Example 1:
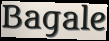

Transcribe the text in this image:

Bagale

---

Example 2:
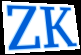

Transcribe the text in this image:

ZK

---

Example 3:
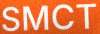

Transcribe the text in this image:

SMCT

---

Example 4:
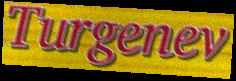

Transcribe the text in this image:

Turgenev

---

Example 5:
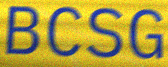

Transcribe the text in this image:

BCSG